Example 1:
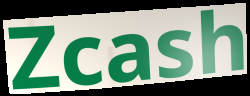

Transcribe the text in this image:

Zcash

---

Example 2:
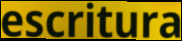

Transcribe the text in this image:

escritura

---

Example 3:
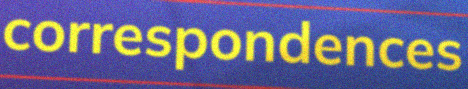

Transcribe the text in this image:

correspondences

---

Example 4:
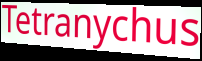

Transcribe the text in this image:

Tetranychus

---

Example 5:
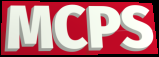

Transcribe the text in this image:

MCPS